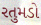
રતુમડો